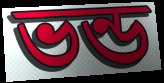
ভন্ড